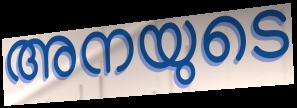
അനയുടെ